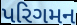
પરિગમન